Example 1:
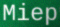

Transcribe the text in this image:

Miep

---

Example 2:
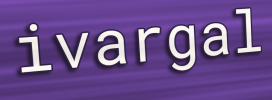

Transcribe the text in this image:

ivargal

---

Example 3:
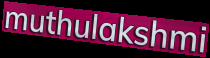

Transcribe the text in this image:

muthulakshmi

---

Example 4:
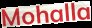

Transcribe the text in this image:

Mohalla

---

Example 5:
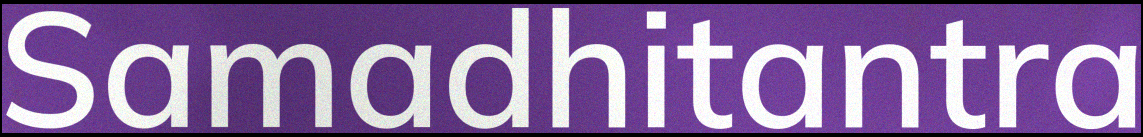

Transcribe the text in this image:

Samadhitantra